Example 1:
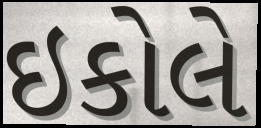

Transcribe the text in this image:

ઇકોલે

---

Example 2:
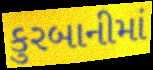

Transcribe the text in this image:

કુરબાનીમાં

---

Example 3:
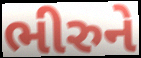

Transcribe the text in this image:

ભીરુને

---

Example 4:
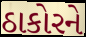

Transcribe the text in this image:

ઠાકોરને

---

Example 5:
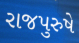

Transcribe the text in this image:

રાજપુરુષે